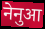
नेनुआ